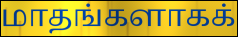
மாதங்களாகக்